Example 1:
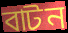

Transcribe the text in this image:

বাটন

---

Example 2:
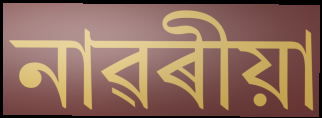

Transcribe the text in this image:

নাৱৰীয়া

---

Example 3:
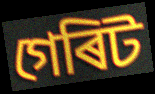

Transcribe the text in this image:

গেৰিট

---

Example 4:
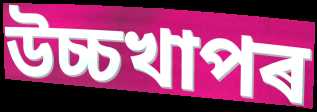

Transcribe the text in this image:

উচ্চখাপৰ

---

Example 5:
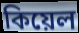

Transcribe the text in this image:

কিয়েল